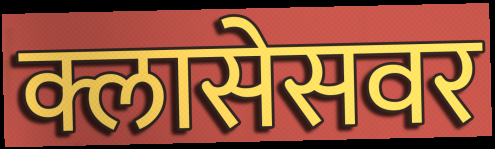
क्लासेसवर